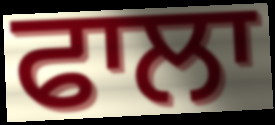
ਫਾਲਾ